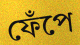
ফেঁপে